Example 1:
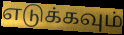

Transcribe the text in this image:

எடுக்கவும்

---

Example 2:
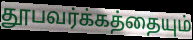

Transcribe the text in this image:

தூபவர்க்கத்தையும்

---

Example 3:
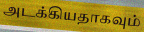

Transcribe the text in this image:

அடக்கியதாகவும்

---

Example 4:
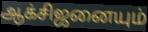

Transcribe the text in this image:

ஆக்சிஜனையும்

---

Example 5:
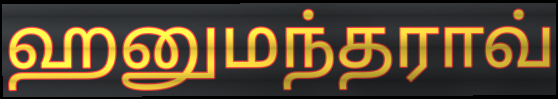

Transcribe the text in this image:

ஹனுமந்தராவ்